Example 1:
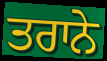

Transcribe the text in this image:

ਤਰਾਨੇ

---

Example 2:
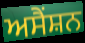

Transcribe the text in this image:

ਅਸੈਂਸ਼ਨ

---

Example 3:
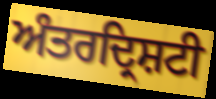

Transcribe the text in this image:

ਅੰਤਰਦ੍ਰਿਸ਼ਟੀ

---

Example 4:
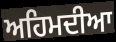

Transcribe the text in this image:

ਅਹਿਮਦੀਆ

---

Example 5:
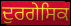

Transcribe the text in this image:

ਦੁਰਗੇਸਿਕ